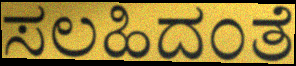
ಸಲಹಿದಂತೆ